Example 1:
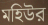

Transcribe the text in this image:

মহিউর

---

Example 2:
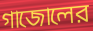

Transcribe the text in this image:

গাজোলের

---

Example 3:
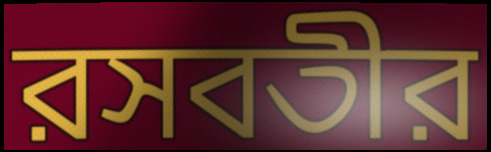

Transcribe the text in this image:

রসবতীর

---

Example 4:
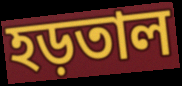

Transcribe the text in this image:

হড়তাল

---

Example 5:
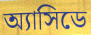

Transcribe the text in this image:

অ্যাসিডে